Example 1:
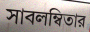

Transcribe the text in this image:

সাবলম্বিতার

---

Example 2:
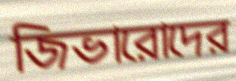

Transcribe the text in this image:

জিভারোদের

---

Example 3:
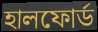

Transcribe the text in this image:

হালফোর্ড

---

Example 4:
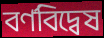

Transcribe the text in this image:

বর্ণবিদ্বেষ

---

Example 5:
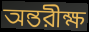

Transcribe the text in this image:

অন্তরীক্ষ